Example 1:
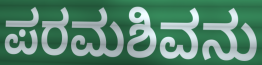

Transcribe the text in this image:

ಪರಮಶಿವನು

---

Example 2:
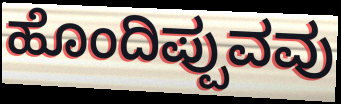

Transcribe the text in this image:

ಹೊಂದಿಪ್ಪುವವು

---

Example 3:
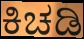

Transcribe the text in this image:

ಕಿಚಡಿ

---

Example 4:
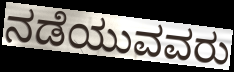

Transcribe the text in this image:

ನಡೆಯುವವರು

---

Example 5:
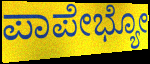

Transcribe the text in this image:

ಪಾಪೇಭ್ಯೋ